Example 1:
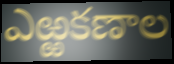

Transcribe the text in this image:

ఎఱ్ఱకణాల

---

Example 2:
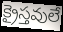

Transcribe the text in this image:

క్రైస్తవులే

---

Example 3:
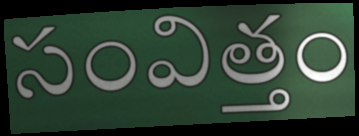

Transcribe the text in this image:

సంవిత్తం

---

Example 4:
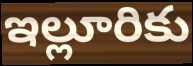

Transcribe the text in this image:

ఇల్లూరికు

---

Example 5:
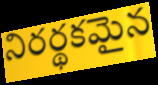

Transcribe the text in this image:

నిరర్థకమైన